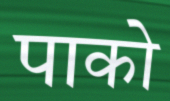
पाको